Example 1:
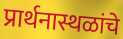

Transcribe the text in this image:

प्रार्थनास्थळांचे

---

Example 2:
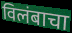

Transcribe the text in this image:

विलंबाचा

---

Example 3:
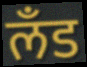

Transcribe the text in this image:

लँड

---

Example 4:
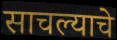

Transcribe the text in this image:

साचल्याचे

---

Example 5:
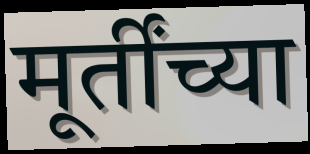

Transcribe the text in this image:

मूर्तींच्या